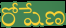
రోషేణ